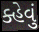
ક્હેવું